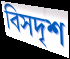
বিসদৃশ